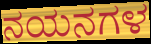
ನಯನಗಳ